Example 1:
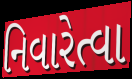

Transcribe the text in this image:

નિવારેત્વા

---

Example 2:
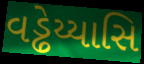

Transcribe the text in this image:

વડ્ઢેય્યાસિ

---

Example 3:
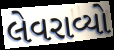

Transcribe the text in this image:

લેવરાવ્યો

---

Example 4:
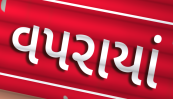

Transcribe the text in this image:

વપરાયાં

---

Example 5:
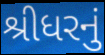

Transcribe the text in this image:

શ્રીધરનું